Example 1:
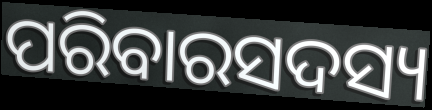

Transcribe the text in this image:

ପରିବାରସଦସ୍ୟ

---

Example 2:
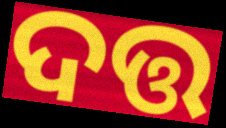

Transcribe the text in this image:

ଦତ୍ତ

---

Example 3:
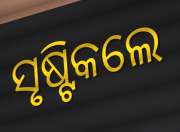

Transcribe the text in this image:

ସୃଷ୍ଟିକଲେ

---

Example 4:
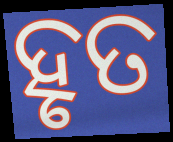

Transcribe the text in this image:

ହୃତ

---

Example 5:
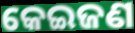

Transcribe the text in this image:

କେଇଜଣ